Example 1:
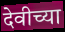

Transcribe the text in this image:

देवीच्या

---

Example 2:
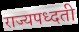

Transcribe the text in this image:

राज्यपध्दती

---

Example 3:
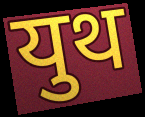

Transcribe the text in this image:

युथ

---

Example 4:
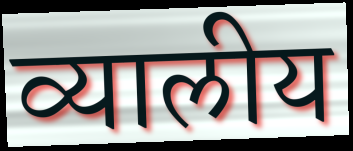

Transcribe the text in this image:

व्यालीय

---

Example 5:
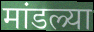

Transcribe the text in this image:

मांडल्या